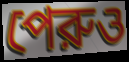
পেরুও